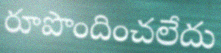
రూపొందించలేదు